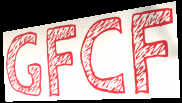
GFCF